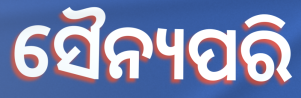
ସୈନ୍ୟପରି